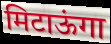
मिटाऊंगा